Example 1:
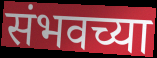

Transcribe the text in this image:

संभवच्या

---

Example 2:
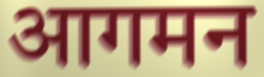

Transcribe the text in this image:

आगमन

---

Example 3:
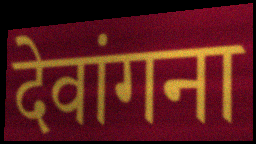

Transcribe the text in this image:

देवांगना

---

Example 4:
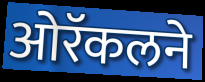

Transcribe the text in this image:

ओरॅकलने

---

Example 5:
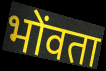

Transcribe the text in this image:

भोंवता